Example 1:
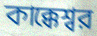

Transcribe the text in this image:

কাক্কেশ্বর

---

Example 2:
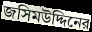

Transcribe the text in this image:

জসিমউদ্দিনের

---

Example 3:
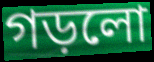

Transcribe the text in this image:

গড়লো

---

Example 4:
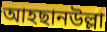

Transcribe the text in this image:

আহছানউল্লা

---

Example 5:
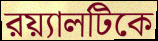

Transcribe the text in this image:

রয়্যালটিকে